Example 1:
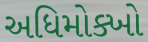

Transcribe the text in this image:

અધિમોક્ખો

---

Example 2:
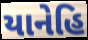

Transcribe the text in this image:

યાનેહિ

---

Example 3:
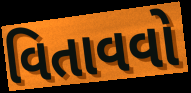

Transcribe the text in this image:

વિતાવવો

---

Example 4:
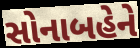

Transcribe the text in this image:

સોનાબહેને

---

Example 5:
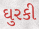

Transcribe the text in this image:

ઘુરકી